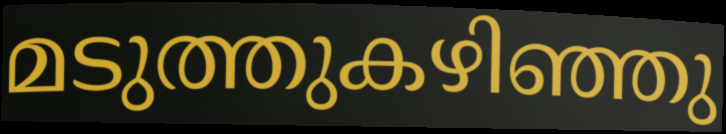
മടുത്തുകഴിഞ്ഞു